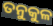
ତନୁକୁଳ